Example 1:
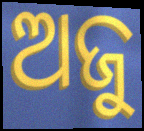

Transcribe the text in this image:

ଅଜୁ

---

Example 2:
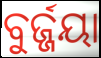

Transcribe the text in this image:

ବୁର୍ଜ୍ଜୟା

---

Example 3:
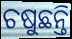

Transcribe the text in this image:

ଚଷୁଛନ୍ତି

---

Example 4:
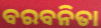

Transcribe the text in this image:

ବରବନିତା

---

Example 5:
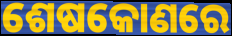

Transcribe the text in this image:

ଶେଷକୋଣରେ